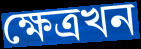
ক্ষেত্ৰখন